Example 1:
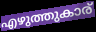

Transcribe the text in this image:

എഴുത്തുകാര്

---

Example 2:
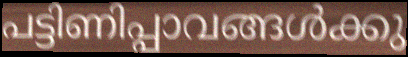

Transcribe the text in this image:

പട്ടിണിപ്പാവങ്ങൾക്കു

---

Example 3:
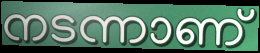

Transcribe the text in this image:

നടന്നാണ്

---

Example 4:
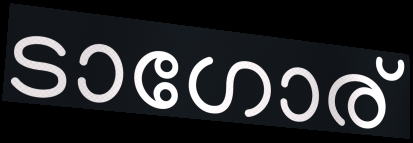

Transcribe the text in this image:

ടാഗോര്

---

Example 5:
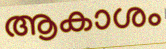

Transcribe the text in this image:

ആകാശം